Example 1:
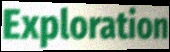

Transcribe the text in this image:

Exploration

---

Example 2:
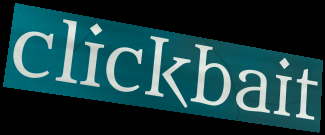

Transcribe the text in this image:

clickbait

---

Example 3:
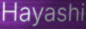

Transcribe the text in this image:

Hayashi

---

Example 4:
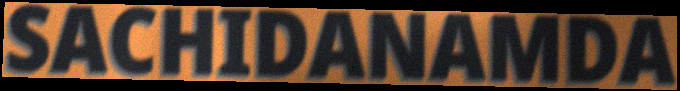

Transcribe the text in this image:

SACHIDANAMDA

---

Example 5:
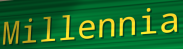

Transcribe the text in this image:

Millennia